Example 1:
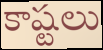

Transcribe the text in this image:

కాష్టలు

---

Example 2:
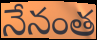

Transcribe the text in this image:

నేనంత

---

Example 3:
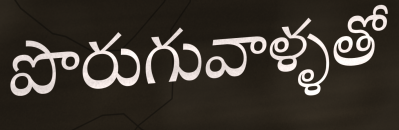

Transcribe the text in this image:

పొరుగువాళ్ళతో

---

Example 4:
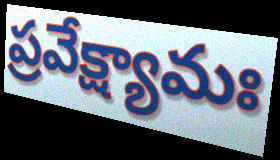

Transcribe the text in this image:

ప్రవేక్ష్యామః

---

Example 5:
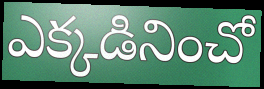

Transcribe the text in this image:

ఎక్కడినించో